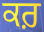
ਕਰ਼